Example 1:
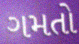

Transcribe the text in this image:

ગમતો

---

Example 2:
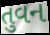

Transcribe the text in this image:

તુવન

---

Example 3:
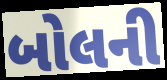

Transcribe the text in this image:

બોલની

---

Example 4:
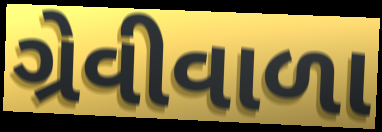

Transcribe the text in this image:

ગ્રેવીવાળા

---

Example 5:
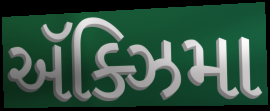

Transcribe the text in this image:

ઍક્ઝિમા